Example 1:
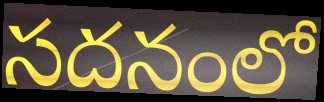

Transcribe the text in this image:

సదనంలో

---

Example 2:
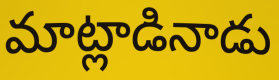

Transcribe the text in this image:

మాట్లాడినాడు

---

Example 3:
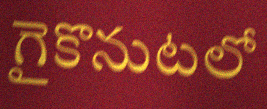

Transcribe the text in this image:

గైకొనుటలో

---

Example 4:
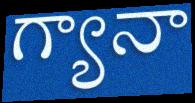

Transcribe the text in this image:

గ్యానా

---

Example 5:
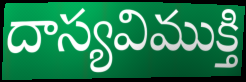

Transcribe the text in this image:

దాస్యవిముక్తి